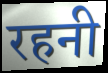
रहनी